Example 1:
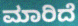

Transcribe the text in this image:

ಮಾರಿದೆ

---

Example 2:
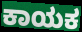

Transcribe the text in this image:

ಕಾಯಕ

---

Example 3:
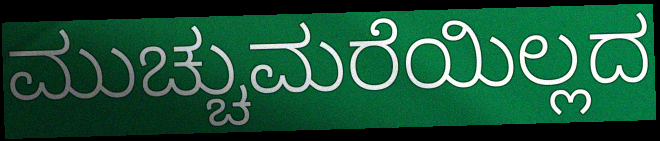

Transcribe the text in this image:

ಮುಚ್ಚುಮರೆಯಿಲ್ಲದ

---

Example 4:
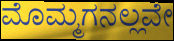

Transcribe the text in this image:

ಮೊಮ್ಮಗನಲ್ಲವೇ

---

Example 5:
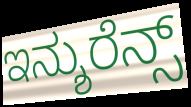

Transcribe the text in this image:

ಇನ್ಶುರೆನ್ಸ್